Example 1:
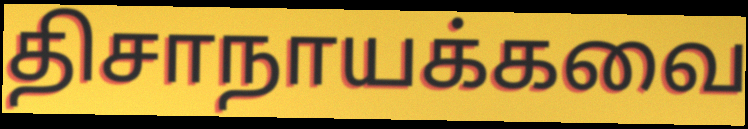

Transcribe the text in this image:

திசாநாயக்கவை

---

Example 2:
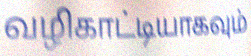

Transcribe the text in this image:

வழிகாட்டியாகவும்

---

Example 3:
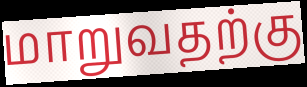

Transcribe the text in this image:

மாறுவதற்கு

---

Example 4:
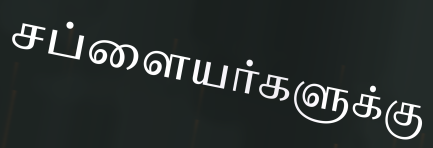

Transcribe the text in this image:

சப்ளையர்களுக்கு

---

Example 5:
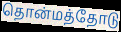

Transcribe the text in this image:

தொன்மத்தோடு